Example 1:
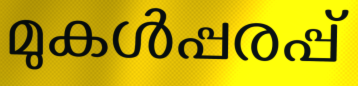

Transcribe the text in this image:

മുകൾപ്പരപ്പ്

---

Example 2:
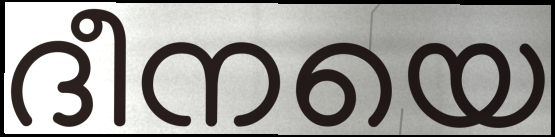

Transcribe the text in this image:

ദീനയെ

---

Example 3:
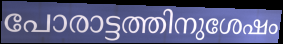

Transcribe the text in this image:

പോരാട്ടത്തിനുശേഷം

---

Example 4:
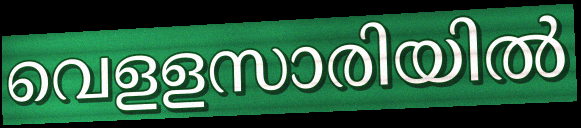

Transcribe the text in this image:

വെളളസാരിയിൽ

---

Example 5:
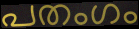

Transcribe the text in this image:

പതംഗം